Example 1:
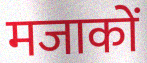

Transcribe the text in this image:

मजाकों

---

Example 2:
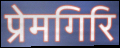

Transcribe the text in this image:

प्रेमगिरि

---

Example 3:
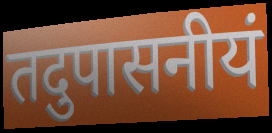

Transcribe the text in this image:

तदुपासनीयं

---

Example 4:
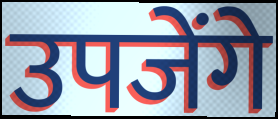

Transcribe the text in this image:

उपजेंगे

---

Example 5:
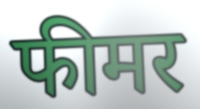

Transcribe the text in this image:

फीमर